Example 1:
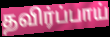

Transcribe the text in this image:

தவிர்ப்பாய்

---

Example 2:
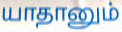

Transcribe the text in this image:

யாதானும்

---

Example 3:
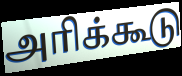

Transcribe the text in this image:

அரிக்கூடு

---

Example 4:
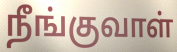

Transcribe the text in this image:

நீங்குவாள்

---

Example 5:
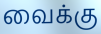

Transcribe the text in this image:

வைக்கு